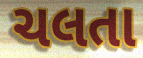
ચલતા